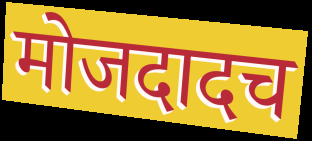
मोजदादच